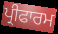
ਪ੍ਰੀਫਾਰਮ